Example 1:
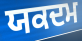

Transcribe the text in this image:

ਯਕਦਮ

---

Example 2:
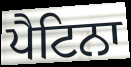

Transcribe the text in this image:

ਪੈਟਿਨਾ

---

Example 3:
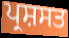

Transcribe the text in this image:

ਪ੍ਰਸ਼ਸਤ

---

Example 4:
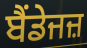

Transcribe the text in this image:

ਬੈਂਡੇਜਜ਼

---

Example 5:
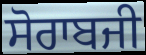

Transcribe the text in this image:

ਸੋਰਾਬਜੀ